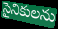
సైనికులను